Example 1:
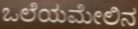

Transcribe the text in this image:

ಒಲೆಯಮೇಲಿನ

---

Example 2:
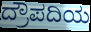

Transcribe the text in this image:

ದ್ರೌಪದಿಯ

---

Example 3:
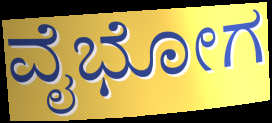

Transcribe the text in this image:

ವೈಭೋಗ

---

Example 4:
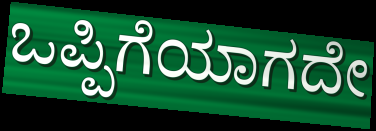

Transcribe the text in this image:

ಒಪ್ಪಿಗೆಯಾಗದೇ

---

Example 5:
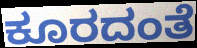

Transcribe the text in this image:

ಕೂರದಂತೆ